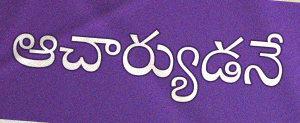
ఆచార్యుడనే